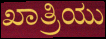
ಖಾತ್ರಿಯು